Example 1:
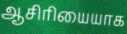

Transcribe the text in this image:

ஆசிரியையாக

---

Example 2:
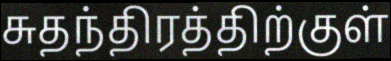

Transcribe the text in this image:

சுதந்திரத்திற்குள்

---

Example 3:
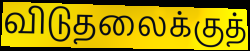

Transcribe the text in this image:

விடுதலைக்குத்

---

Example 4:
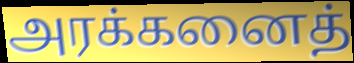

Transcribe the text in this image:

அரக்கனைத்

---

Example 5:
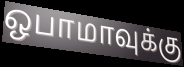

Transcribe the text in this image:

ஒபாமாவுக்கு